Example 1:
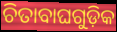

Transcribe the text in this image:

ଚିତାବାଘଗୁଡ଼ିକ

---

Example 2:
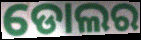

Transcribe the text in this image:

ଡୋଲର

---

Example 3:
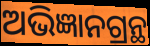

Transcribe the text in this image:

ଅଭିଜ୍ଞାନଗ୍ରନ୍ଥ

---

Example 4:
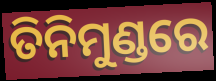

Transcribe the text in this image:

ତିନିମୁଣ୍ଡରେ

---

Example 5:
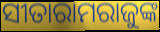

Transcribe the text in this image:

ସୀତାରାମରାଜୁଙ୍କ